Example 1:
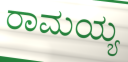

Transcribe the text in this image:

ರಾಮಯ್ಯ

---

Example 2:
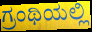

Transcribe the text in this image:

ಗ್ರಂಥಿಯಲ್ಲಿ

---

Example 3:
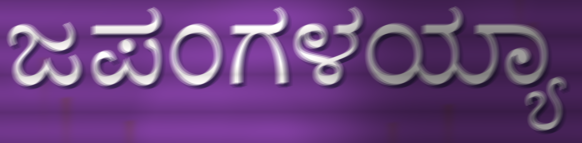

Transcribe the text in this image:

ಜಪಂಗಳಯ್ಯಾ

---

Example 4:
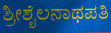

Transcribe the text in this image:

ಶ್ರೀಶೈಲನಾಥಪತಿ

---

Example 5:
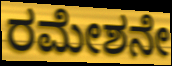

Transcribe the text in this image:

ರಮೇಶನೇ